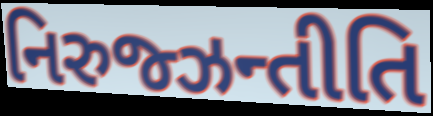
નિરુજ્ઝન્તીતિ